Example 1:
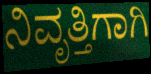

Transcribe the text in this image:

ನಿವೃತ್ತಿಗಾಗಿ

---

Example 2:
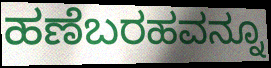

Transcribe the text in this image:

ಹಣೆಬರಹವನ್ನೂ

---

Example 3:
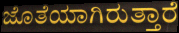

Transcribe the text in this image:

ಜೊತೆಯಾಗಿರುತ್ತಾರೆ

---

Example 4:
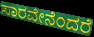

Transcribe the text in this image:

ಸಾರವೇನೆಂದರೆ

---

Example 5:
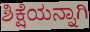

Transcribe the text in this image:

ಶಿಕ್ಷೆಯನ್ನಾಗಿ